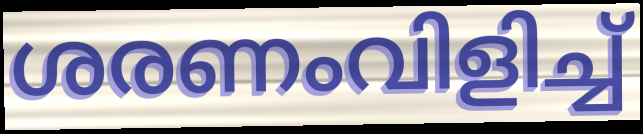
ശരണംവിളിച്ച്